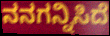
ನನಗನ್ನಿಸಿದೆ